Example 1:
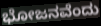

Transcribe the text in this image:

ಭೋಜನವೆಂದು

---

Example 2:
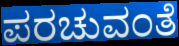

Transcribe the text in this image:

ಪರಚುವಂತೆ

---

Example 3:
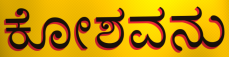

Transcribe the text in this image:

ಕೋಶವನು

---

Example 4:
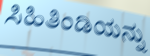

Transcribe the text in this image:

ಸಿಹಿತಿಂಡಿಯನ್ನು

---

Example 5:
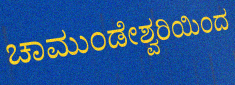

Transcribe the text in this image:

ಚಾಮುಂಡೇಶ್ವರಿಯಿಂದ